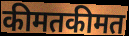
कीमतकीमत